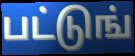
பட்டுங்